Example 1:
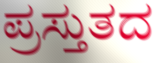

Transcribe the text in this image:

ಪ್ರಸ್ತುತದ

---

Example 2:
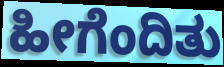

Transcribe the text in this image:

ಹೀಗೆಂದಿತು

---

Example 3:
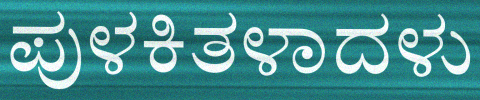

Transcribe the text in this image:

ಪುಳಕಿತಳಾದಳು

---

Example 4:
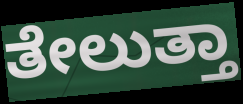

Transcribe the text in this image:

ತೇಲುತ್ತಾ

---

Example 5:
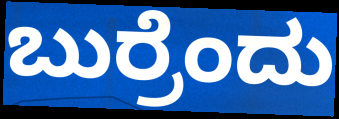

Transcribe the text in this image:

ಬುರ್ರೆಂದು